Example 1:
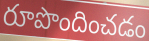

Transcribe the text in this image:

రూపొందించడం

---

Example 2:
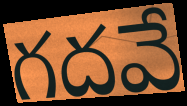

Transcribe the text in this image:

గదవే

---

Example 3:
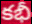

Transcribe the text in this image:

కభీ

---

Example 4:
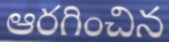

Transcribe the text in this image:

ఆరగించిన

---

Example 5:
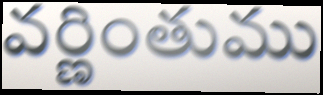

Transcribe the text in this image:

వర్ణింతుము